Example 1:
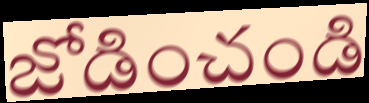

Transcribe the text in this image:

జోడించండి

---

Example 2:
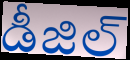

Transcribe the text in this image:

డీజిల్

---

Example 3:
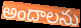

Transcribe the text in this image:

అందాలను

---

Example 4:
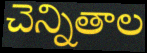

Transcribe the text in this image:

చెన్నితాల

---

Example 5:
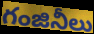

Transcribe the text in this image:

గంజినీలు